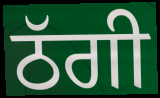
ਠੱਗੀ